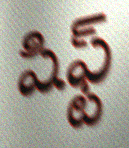
షిఫ్ట్